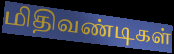
மிதிவண்டிகள்